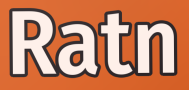
Ratn